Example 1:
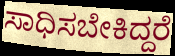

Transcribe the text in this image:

ಸಾಧಿಸಬೇಕಿದ್ದರೆ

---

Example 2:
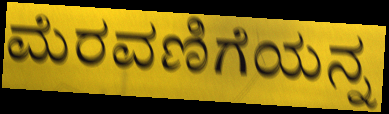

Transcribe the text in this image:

ಮೆರವಣಿಗೆಯನ್ನ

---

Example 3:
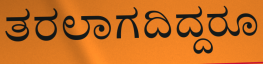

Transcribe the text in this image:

ತರಲಾಗದಿದ್ದರೂ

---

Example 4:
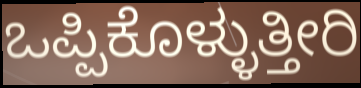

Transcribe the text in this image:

ಒಪ್ಪಿಕೊಳ್ಳುತ್ತೀರಿ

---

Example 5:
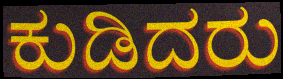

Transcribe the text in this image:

ಕುಡಿದರು